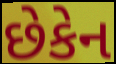
છેકેન